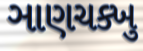
ઞાણચક્ખુ